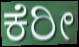
ಕೆರೀ